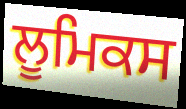
ਲੂਮਿਕਸ